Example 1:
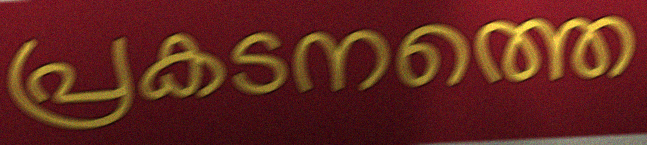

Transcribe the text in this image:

പ്രകടനത്തെ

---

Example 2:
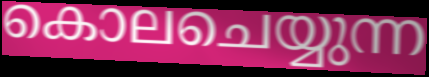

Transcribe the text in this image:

കൊലചെയ്യുന്ന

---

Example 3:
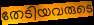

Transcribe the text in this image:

തേടിയവരുടെ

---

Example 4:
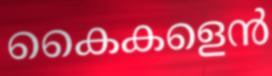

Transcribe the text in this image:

കൈകളെൻ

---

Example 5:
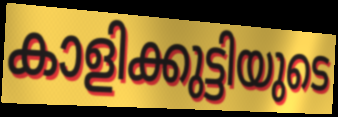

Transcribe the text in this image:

കാളിക്കുട്ടിയുടെ